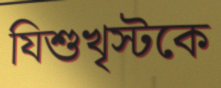
যিশুখৃস্টকে